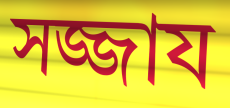
সজ্জায